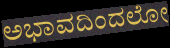
ಅಭಾವದಿಂದಲೋ